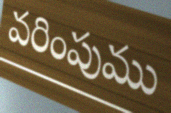
వరింపుము